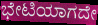
ಭೇಟಿಯಾಗದೇ